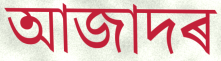
আজাদৰ